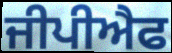
ਜੀਪੀਐਫ